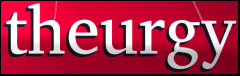
theurgy